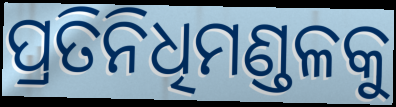
ପ୍ରତିନିଧିମଣ୍ଡଳକୁ